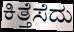
ಕಿತ್ತೆಸೆದು